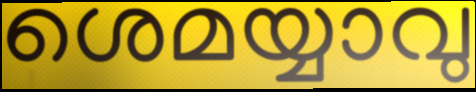
ശെമയ്യാവു